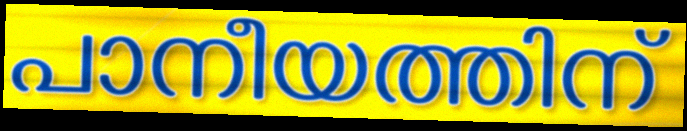
പാനീയത്തിന്